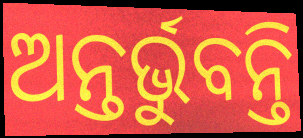
ଅନ୍ତର୍ଭୁବନ୍ତି